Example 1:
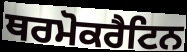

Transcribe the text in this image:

ਥਰਮੋਕਰੈਟਿਨ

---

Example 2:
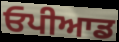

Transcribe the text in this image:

ਓਪੀਆਡ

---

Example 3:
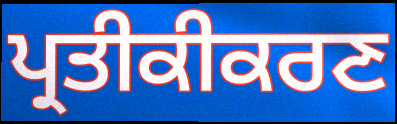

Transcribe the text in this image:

ਪ੍ਰਤੀਕੀਕਰਣ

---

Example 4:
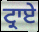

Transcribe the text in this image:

ਟ੍ਰਾਏ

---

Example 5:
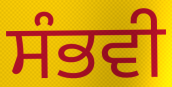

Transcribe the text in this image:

ਸੰਭਵੀ